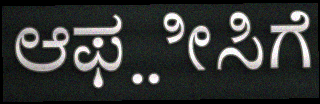
ಆಫ಼ೀಸಿಗೆ